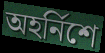
অহৰ্নিশে